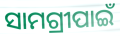
ସାମଗ୍ରୀପାଇଁ